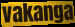
vakanga